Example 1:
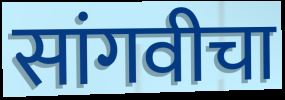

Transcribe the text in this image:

सांगवीचा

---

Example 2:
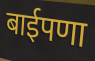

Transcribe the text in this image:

बाईपणा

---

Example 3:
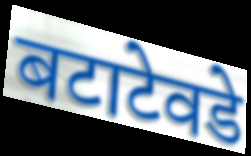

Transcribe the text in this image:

बटाटेवडे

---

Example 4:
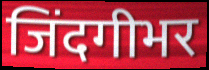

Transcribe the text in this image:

जिंदगीभर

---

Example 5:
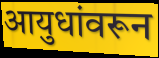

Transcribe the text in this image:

आयुधांवरून